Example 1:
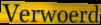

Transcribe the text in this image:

Verwoerd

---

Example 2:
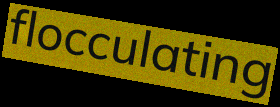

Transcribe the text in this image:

flocculating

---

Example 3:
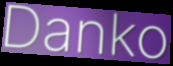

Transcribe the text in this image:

Danko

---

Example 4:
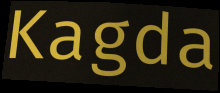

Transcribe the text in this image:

Kagda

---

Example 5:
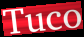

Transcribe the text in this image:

Tuco